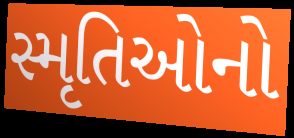
સ્મૃતિઓનો